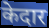
केदार